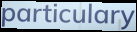
particulary